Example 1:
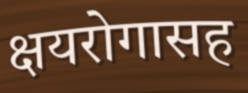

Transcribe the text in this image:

क्षयरोगासह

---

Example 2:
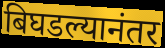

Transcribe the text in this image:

बिघडल्यानंतर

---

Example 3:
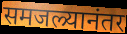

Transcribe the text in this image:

समजल्यानंतर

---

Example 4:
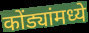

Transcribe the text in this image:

कोंड्यांमध्ये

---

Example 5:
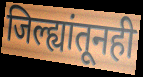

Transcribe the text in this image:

जिल्ह्यांतूनही